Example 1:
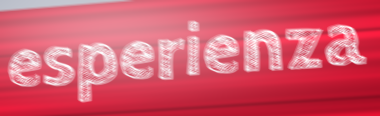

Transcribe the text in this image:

esperienza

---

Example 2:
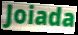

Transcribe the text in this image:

Joiada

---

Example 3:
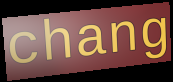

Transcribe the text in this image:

chang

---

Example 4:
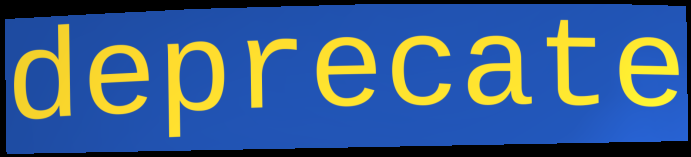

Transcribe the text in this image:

deprecate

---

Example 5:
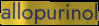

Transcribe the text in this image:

allopurinol